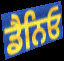
ਡੈਨਿਓ